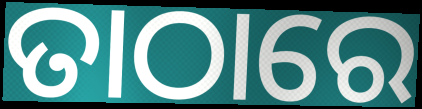
ତାଠାରେ